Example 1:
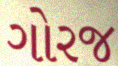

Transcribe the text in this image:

ગોરજ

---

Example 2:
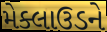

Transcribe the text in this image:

મેક્લાઉડને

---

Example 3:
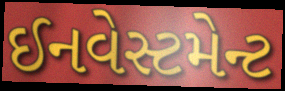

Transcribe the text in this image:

ઈનવેસ્ટમેન્ટ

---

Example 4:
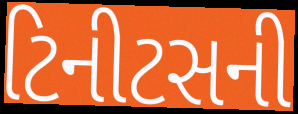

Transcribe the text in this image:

ટિનીટસની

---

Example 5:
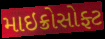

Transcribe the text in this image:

માઇક્રોસોફ્ટ